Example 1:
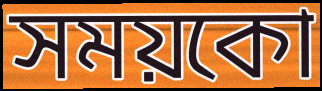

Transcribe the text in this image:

সময়কো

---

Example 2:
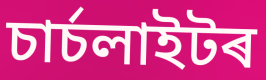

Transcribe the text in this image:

চাৰ্চলাইটৰ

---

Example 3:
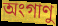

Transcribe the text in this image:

অংগাণু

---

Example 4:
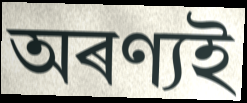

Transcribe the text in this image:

অৰণ্যই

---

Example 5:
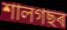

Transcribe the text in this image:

শালগছৰ